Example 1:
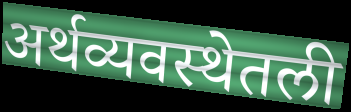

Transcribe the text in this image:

अर्थव्यवस्थेतली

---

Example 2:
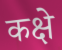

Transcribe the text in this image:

कक्षे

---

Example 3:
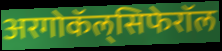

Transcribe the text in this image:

अरगोकॅल्सिफेरॉल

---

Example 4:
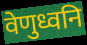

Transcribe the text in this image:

वेणुध्वनि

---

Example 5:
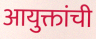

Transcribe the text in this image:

आयुक्तांची